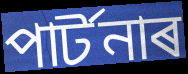
পাৰ্টনাৰ